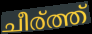
ചീര്ത്ത്